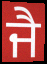
ਜੈ